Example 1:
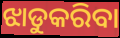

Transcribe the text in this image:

ଝାଡୁକରିବା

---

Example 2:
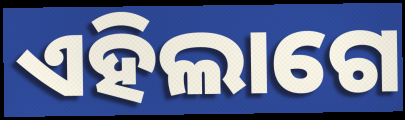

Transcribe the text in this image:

ଏହିଲାଗେ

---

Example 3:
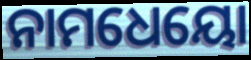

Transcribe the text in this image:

ନାମଧେୟୋ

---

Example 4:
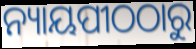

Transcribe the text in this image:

ନ୍ୟାୟପୀଠଠାରୁ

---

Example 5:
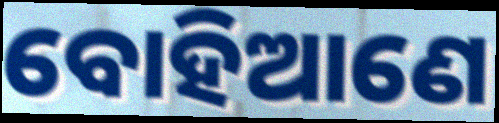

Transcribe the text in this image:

ବୋହିଆଣେ